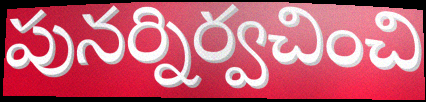
పునర్నిర్వచించి